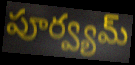
పూర్వ్యమ్